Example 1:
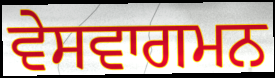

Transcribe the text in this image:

ਵੇਸਵਾਗਮਨ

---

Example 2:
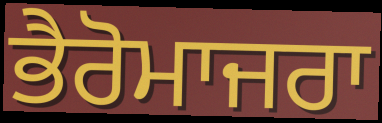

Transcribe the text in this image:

ਭੈਰੋਮਾਜਰਾ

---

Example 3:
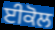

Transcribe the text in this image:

ਈਕੋਲ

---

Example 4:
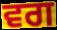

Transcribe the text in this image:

ਵਗ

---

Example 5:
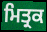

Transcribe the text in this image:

ਮਿਤ੍ਰਕ